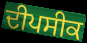
ਦੀਪਸੀਕ